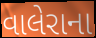
વાલેરાના